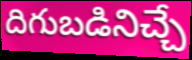
దిగుబడినిచ్చే